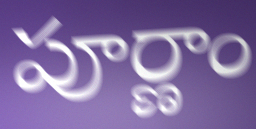
పూర్ణాం